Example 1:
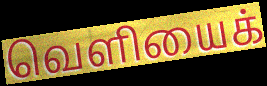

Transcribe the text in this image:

வெளியைக்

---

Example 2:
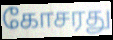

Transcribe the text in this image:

கோசரது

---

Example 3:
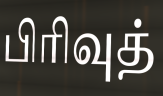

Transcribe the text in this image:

பிரிவுத்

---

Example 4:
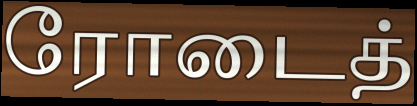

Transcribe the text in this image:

ரோடைத்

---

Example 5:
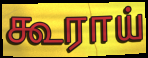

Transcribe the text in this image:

கூராய்